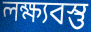
লক্ষ্যবস্তু